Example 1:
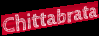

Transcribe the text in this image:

Chittabrata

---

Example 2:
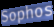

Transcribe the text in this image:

Sophos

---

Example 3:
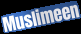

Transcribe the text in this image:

Muslimeen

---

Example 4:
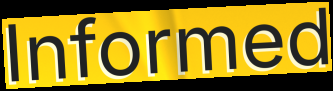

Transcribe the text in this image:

Informed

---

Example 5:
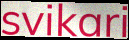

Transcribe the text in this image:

svikari